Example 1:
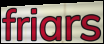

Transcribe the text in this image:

friars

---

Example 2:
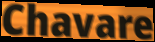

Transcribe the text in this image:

Chavare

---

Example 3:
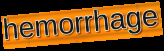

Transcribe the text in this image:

hemorrhage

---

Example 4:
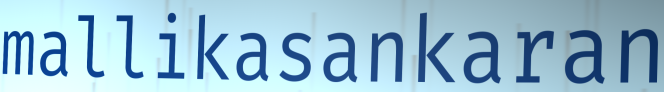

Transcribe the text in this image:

mallikasankaran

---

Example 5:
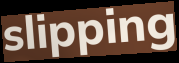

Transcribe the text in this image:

slipping